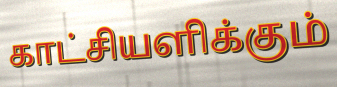
காட்சியளிக்கும்